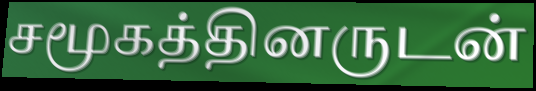
சமூகத்தினருடன்